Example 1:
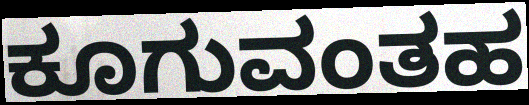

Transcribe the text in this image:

ಕೂಗುವಂತಹ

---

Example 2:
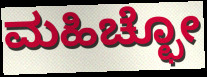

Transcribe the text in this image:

ಮಹಿಚ್ಛೋ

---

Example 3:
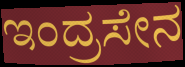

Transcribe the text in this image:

ಇಂದ್ರಸೇನ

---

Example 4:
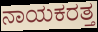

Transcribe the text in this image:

ನಾಯಕರತ್ತ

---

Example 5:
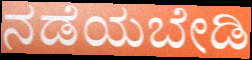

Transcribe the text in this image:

ನಡೆಯಬೇಡಿ